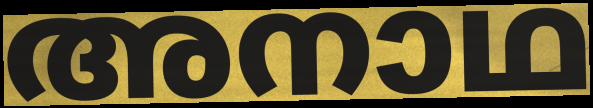
അനാഥ